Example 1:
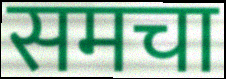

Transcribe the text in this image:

समचा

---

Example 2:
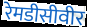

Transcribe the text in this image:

रेमडीसीवीर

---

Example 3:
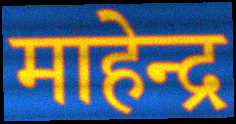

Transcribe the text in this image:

माहेन्द्र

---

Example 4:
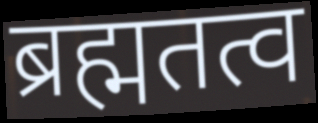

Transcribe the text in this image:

ब्रह्मतत्व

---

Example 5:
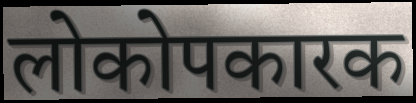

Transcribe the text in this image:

लोकोपकारक